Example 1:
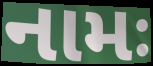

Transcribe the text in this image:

નામઃ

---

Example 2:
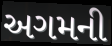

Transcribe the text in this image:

અગમની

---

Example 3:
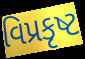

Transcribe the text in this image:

વિપ્રકૃષ્ટ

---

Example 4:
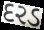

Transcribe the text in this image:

દરડ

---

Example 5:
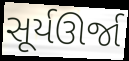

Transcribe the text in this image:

સૂર્યઊર્જા